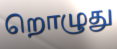
றொழுது